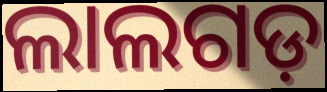
ଲାଲଗଡ଼